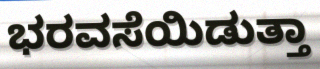
ಭರವಸೆಯಿಡುತ್ತಾ